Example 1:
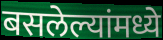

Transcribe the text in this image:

बसलेल्यांमध्ये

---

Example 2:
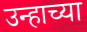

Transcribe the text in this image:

उन्हाच्या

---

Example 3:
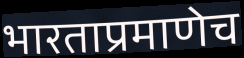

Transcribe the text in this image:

भारताप्रमाणेच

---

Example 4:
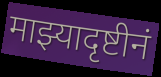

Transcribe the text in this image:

माझ्यादृष्टीनं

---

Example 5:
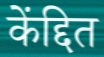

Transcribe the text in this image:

केंद्दित